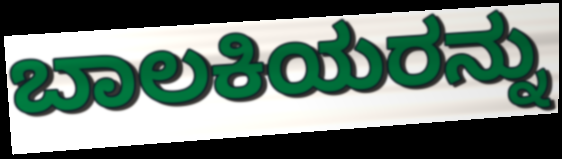
ಬಾಲಕಿಯರನ್ನು